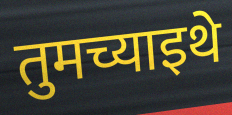
तुमच्याइथे